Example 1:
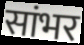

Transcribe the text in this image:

सांभर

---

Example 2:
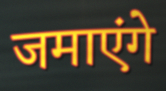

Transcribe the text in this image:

जमाएंगे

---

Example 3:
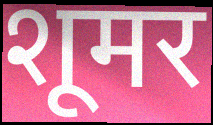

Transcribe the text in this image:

शूमर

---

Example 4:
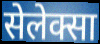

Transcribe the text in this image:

सेलेक्सा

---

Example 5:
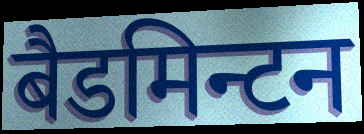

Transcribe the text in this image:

बैडमिन्टन